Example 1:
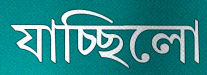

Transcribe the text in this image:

যাচ্ছিলো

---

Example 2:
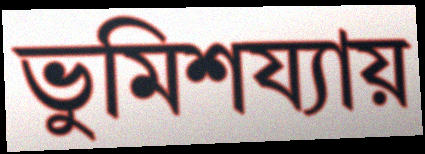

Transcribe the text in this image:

ভুমিশয্যায়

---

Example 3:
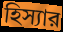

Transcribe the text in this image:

হিস্যার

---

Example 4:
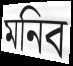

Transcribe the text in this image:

মনিব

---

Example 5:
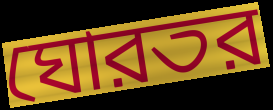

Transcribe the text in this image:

ঘোরতর